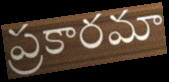
ప్రకారమా